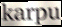
karpu